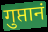
गुप्तानं